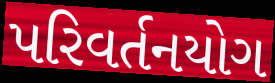
પરિવર્તનયોગ